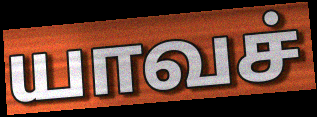
யாவச்